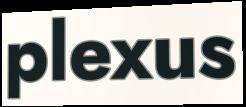
plexus